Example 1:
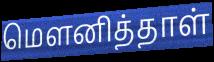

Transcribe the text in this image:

மௌனித்தாள்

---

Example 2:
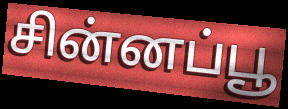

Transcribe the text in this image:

சின்னப்பூ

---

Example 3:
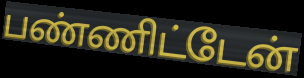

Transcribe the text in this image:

பண்ணிட்டேன்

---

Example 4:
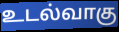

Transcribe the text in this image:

உடல்வாகு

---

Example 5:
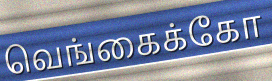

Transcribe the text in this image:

வெங்கைக்கோ